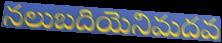
నలుబదియెనిమదవ